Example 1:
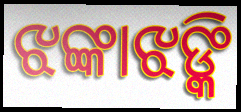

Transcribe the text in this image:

ଝଙ୍କାଝଙ୍କି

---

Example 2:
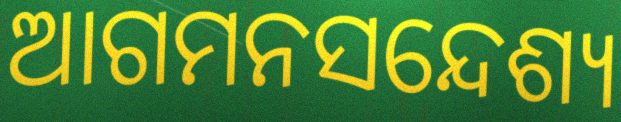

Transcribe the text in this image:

ଆଗମନସନ୍ଦେଶ୍ୟ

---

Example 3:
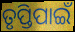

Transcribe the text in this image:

ତୃପ୍ତିପାଇଁ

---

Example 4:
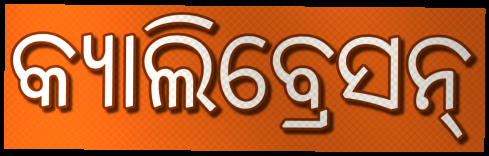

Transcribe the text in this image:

କ୍ୟାଲିବ୍ରେସନ୍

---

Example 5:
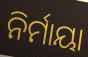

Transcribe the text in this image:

ନିର୍ମାୟା